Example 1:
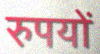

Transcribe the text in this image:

रुपयों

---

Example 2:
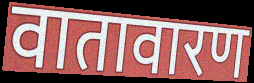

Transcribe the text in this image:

वातावारण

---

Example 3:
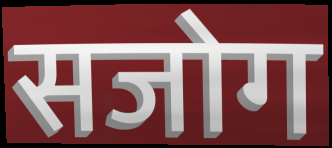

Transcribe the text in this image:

सजोग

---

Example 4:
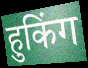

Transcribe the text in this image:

हुकिंग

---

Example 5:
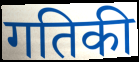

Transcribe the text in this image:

गतिकी